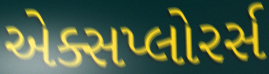
એક્સપ્લોરર્સ